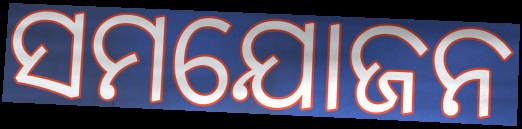
ସମଯୋଜନ